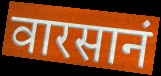
वारसानं